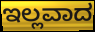
ಇಲ್ಲವಾದ